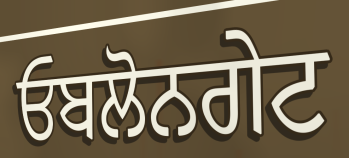
ਓਬਲੋਨਗੇਟ